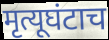
मृत्यूघंटाच